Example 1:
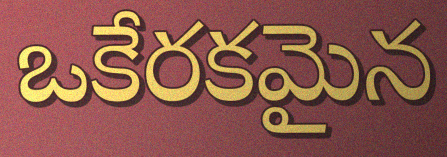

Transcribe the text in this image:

ఒకేరకమైన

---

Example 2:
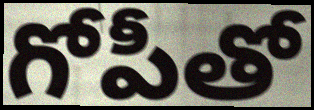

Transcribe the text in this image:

గోపీతో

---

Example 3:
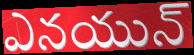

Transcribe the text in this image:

ఎనయున్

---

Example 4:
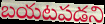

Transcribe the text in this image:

బయటపడని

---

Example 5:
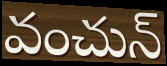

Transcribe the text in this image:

వంచున్